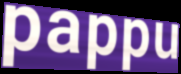
pappu